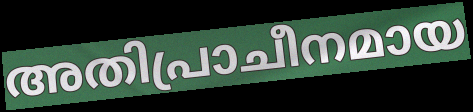
അതിപ്രാചീനമായ